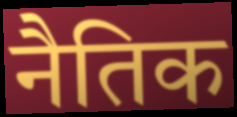
नैतिक